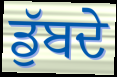
ਡੁੱਬਦੇ